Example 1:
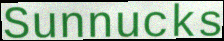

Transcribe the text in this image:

Sunnucks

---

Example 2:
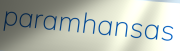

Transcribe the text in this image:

paramhansas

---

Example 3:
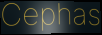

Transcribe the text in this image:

Cephas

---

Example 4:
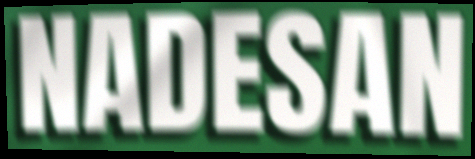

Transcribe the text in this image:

NADESAN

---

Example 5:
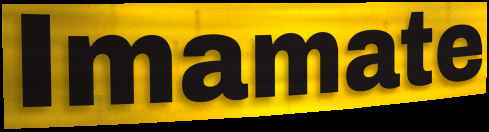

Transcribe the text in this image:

Imamate